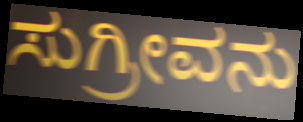
ಸುಗ್ರೀವನು